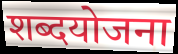
शब्दयोजना